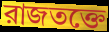
রাজতক্তে